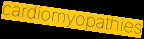
cardiomyopathies